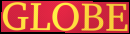
GLOBE